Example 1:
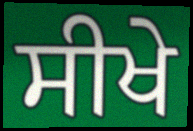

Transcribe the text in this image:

ਸੀਖੇ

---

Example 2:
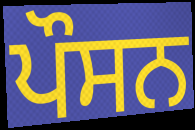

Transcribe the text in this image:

ਪੌਸਨ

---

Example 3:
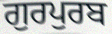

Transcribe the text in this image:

ਗੁਰਪੁਰਬ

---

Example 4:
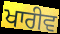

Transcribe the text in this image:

ਖਾਰੀਵ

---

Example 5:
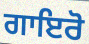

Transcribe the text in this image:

ਗਾਇਰੋ